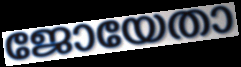
ജോയേതാ